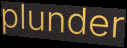
plunder